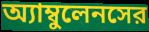
অ্যাম্বুলেনসের